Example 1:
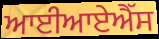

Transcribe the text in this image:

ਆਈਆਏਐੱਸ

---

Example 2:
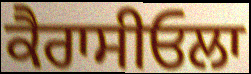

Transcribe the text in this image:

ਕੈਰਾਸੀਓਲਾ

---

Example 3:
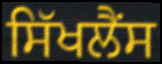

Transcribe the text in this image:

ਸਿੱਖਲੈਂਸ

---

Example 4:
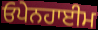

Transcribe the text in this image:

ਓਪੇਨਹਾਈਮ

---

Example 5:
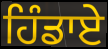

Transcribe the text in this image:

ਹਿੰਡਾਏ